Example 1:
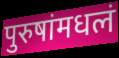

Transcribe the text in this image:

पुरुषांमधलं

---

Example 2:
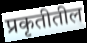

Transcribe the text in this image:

प्रकृतीतील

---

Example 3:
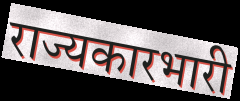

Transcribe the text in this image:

राज्यकारभारी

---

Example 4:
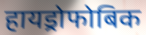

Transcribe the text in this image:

हायड्रोफोबिक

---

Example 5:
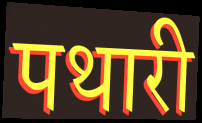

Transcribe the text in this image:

पथारी